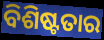
ବିଶିଷ୍ଟତାର